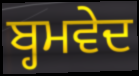
ਬ੍ਹਮਵੇਦ